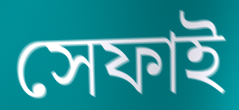
সেফাই